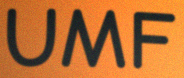
UMF